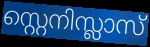
സ്റ്റെനിസ്ലാസ്